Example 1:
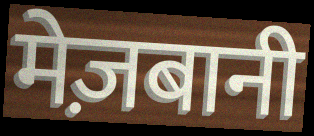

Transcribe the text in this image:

मेज़बानी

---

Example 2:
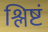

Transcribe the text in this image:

श्लिष्टं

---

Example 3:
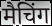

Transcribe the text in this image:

मैचिंग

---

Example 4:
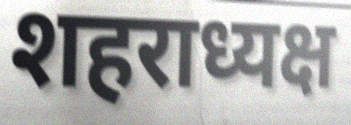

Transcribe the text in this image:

शहराध्यक्ष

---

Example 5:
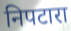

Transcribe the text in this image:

निपटारा